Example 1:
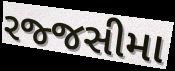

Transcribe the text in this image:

રજ્જસીમા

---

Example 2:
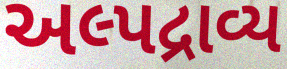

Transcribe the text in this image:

અલ્પદ્રાવ્ય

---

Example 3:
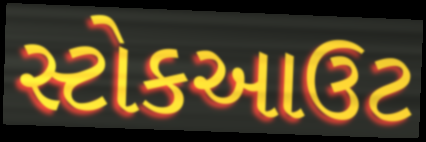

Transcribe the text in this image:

સ્ટોકઆઉટ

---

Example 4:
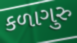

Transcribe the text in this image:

કળાગુરુ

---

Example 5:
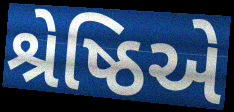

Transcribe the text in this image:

શ્રેષ્ઠિએ